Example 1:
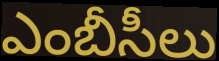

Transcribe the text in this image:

ఎంబీసీలు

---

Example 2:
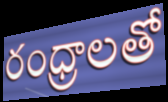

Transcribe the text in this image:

రంధ్రాలతో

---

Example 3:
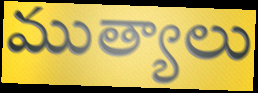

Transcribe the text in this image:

ముత్యాలు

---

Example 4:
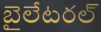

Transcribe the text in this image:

బైలేటరల్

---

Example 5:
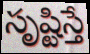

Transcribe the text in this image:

సృష్టిస్తే